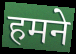
हमने